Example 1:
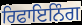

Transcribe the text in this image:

ਰਿਫਾਇਨਿੰਗ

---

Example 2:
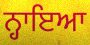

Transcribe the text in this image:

ਨ੍ਹ੍ਹਾਇਆ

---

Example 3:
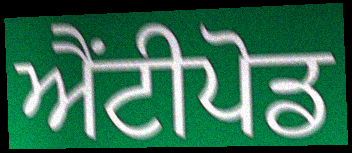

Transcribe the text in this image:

ਐਂਟੀਪੋਡ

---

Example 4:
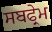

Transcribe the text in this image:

ਸਬਫ੍ਰੇਮ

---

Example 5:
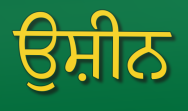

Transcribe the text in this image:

ਉਸ਼ੀਨ